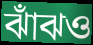
ঝাঁঝও